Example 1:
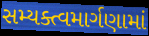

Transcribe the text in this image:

સમ્યક્ત્વમાર્ગણામાં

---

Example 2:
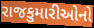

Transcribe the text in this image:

રાજકુમારીઓનો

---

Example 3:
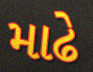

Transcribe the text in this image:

માઢે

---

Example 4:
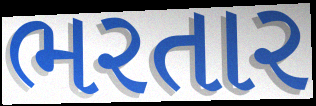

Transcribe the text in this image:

ભરતાર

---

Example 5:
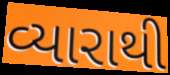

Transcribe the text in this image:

વ્યારાથી